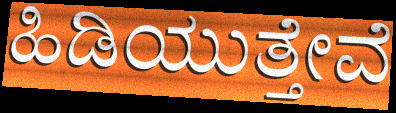
ಹಿಡಿಯುತ್ತೇವೆ